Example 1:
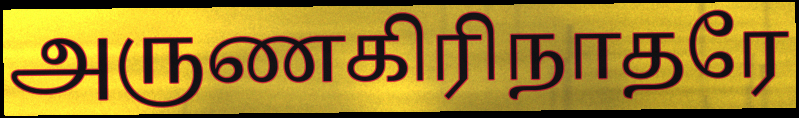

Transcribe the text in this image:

அருணகிரிநாதரே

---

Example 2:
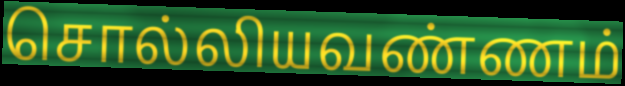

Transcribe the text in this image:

சொல்லியவண்ணம்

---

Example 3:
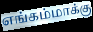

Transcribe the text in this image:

எங்கம்மாக்கு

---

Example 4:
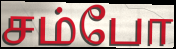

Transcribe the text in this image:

சம்போ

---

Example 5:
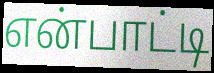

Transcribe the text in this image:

என்பாட்டி